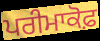
ਪਰੀਮਾਕੋਫ਼